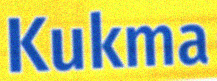
Kukma